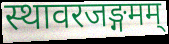
स्थावरजङ्गमम्